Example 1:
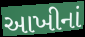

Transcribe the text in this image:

આખીનાં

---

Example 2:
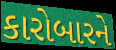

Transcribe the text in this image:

કારોબારને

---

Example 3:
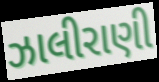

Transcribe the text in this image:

ઝાલીરાણી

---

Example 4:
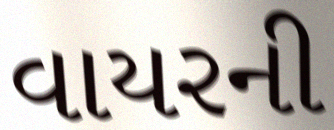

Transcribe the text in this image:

વાયરની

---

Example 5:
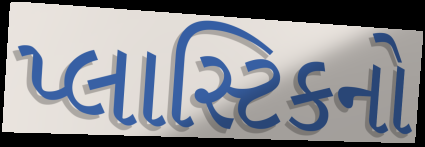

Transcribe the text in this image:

પ્લાસ્ટિકનો